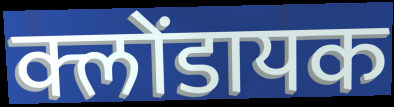
क्लोंडायक